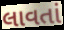
લાવતાં